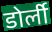
डोर्ली